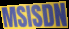
MSISDN